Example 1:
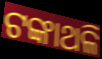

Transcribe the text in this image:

ଟଙ୍କାଥଳି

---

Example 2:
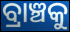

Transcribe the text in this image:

ବ୍ରାଞ୍ଚକୁ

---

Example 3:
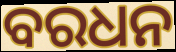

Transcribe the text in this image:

ବରଧନ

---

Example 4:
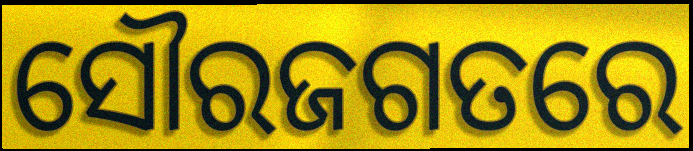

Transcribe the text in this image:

ସୌରଜଗତରେ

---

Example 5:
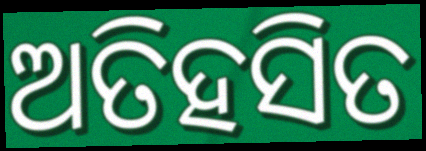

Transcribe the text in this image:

ଅତିହସିତ